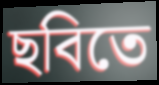
ছবিতে